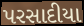
પરસાદીયા